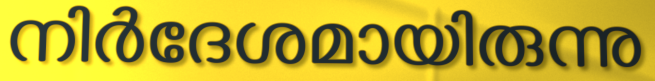
നിർദേശമായിരുന്നു